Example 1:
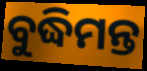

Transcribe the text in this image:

ବୁଦ୍ଧିମନ୍ତ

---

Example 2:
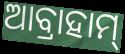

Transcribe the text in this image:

ଆବ୍ରାହାମ୍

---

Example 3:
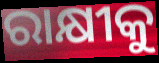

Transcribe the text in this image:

ରାକ୍ଷୀକୁ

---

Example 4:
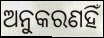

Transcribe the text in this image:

ଅନୁକରଣହିଁ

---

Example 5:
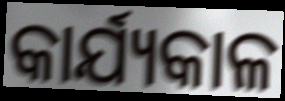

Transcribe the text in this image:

କାର୍ଯ୍ୟକାଳ